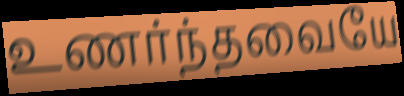
உணர்ந்தவையே